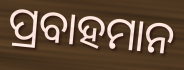
ପ୍ରବାହମାନ